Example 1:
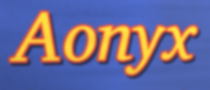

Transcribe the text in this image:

Aonyx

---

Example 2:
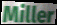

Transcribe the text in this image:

Miller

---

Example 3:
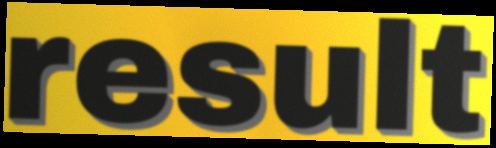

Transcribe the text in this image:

result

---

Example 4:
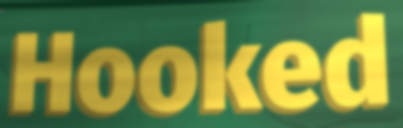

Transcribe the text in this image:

Hooked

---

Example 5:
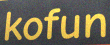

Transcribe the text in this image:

kofun